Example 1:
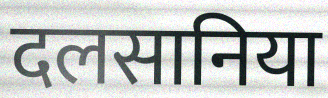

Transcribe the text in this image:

दलसानिया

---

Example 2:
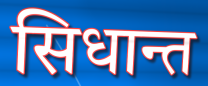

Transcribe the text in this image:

सिधान्त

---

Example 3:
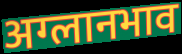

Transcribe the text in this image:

अग्लानभाव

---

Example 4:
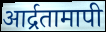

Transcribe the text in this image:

आर्द्रतामापी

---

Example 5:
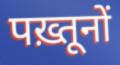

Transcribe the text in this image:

पख़्तूनों